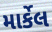
માર્કેલ